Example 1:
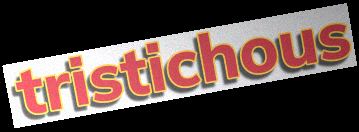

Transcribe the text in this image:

tristichous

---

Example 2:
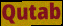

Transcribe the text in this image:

Qutab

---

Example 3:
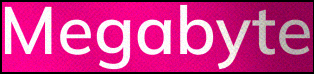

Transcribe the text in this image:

Megabyte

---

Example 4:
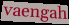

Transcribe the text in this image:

vaengah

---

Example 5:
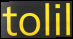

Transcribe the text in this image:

tolil